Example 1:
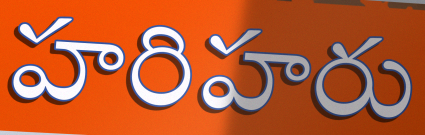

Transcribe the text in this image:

హరిహరు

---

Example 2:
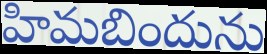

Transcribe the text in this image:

హిమబిందును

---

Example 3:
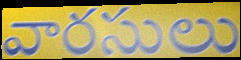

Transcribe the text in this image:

వారసులు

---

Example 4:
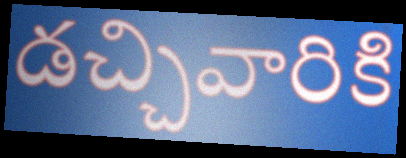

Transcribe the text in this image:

డచ్చివారికి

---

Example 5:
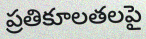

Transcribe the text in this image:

ప్రతికూలతలపై